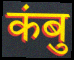
कंबु